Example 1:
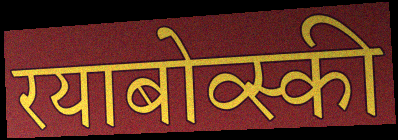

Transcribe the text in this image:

रयाबोव्स्की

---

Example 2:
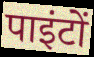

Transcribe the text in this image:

पाइंटों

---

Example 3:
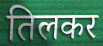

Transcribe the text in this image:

तिलकर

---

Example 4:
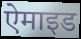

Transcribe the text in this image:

ऐमाइड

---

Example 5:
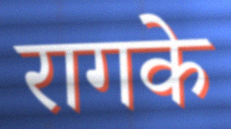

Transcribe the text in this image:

रागके